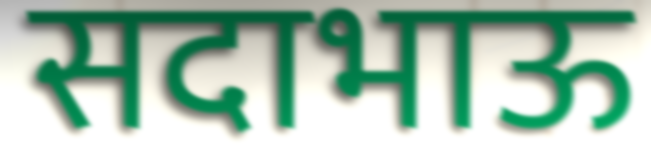
सदाभाऊ